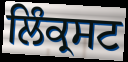
ਲਿੰਕ੍ਰਸਟ